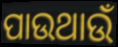
ପାଉଥାଉଁ